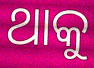
ଥାକୁ